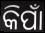
କିପାଁ